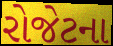
રોજેટના